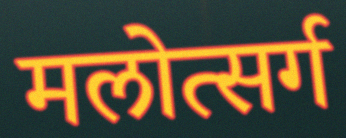
मलोत्सर्ग